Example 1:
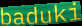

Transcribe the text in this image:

baduki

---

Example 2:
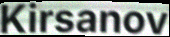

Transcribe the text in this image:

Kirsanov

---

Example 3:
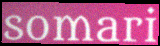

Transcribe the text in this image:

somari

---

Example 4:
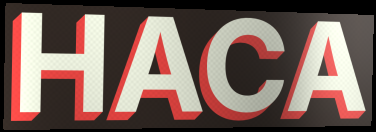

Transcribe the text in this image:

HACA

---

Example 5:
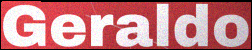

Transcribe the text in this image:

Geraldo